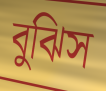
বুঝিস